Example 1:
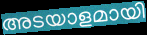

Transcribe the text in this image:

അടയാളമായി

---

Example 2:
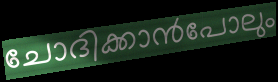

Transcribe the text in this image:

ചോദിക്കാൻപോലും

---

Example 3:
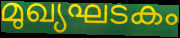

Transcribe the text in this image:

മുഖ്യഘടകം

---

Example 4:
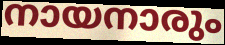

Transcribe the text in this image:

നായനാരും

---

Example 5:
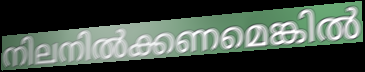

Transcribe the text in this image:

നിലനിൽക്കണമെങ്കിൽ